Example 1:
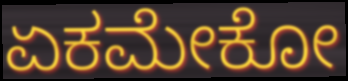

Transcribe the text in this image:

ಏಕಮೇಕೋ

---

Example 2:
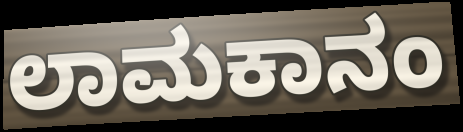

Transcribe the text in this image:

ಲಾಮಕಾನಂ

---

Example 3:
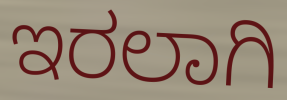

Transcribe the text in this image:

ಇರಲಾಗಿ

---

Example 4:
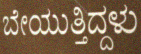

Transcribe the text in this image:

ಬೇಯುತ್ತಿದ್ದಳು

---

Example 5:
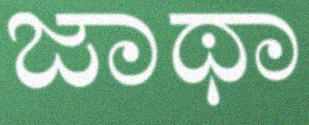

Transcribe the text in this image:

ಜಾಥಾ